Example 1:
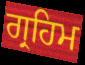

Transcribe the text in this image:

ਗ੍ਰਹਿਮ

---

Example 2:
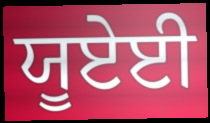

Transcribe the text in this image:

ਯੂਏਈ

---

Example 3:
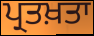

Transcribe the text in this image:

ਪ੍ਰਤਖ਼ਤਾ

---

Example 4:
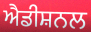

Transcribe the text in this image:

ਐਡੀਸ਼ਨਲ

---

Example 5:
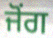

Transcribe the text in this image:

ਜੋਂਗ